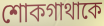
শোকগাথাকে